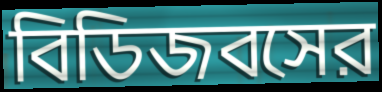
বিডিজবসের